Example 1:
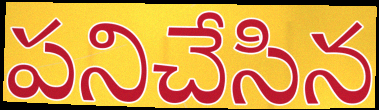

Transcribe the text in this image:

పనిచేసిన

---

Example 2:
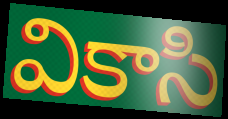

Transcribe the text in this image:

వికాసి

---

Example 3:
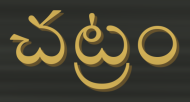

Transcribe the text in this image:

చట్రం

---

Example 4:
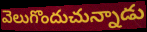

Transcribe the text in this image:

వెలుగొందుచున్నాడు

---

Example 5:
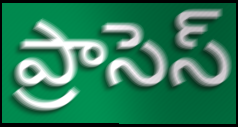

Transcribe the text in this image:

ప్రాసెస్